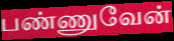
பண்ணுவேன்